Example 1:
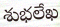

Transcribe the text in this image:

శుభలేఖ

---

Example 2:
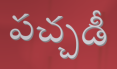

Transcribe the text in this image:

పచ్చడీ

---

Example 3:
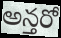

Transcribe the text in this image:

అన్తరో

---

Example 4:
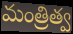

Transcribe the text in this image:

మంత్రిత్వ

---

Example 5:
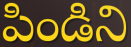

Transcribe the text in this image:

పిండిని